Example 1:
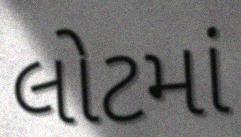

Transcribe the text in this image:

લોટમાં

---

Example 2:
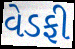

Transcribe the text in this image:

વેડફી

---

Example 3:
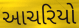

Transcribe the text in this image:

આચરિયો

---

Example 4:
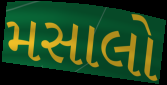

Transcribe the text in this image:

મસાલો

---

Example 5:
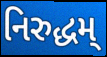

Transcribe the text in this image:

નિરુદ્ધમ્